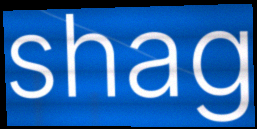
shag